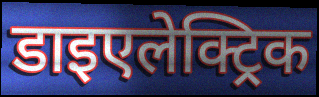
डाइएलेक्ट्रिक